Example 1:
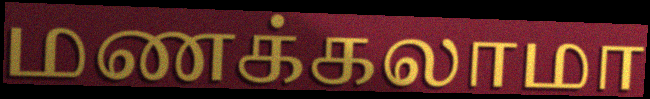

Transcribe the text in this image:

மணக்கலாமா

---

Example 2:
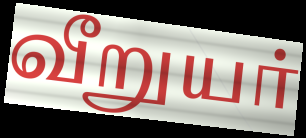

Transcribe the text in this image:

வீறுயர்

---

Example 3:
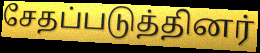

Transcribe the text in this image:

சேதப்படுத்தினர்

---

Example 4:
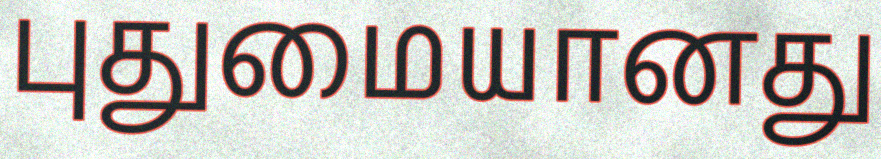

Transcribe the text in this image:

புதுமையானது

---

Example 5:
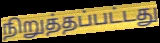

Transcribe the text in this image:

நிறுத்தப்பட்டது